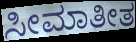
ಸೀಮಾತೀತ